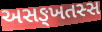
અસઙ્ખતસ્સ